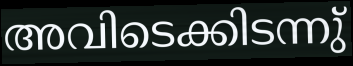
അവിടെക്കിടന്നു്